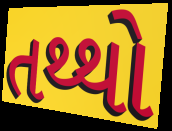
તથ્થો